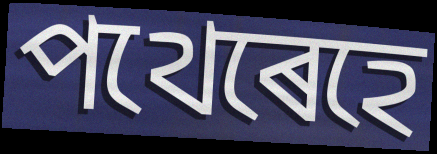
পথেৰেহে